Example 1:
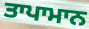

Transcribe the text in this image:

ਤਾਪਾਮਾਨ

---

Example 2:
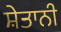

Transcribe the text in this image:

ਸ਼ੇਤਾਨੀ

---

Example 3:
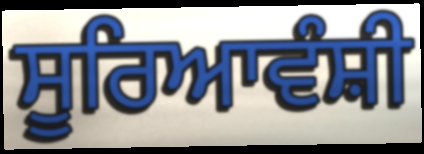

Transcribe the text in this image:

ਸੂਰਿਆਵੰਸ਼ੀ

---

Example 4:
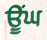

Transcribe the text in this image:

ਊਂਘ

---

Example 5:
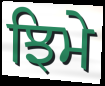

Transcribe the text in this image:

ਝਿਮੇ